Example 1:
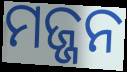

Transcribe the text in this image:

ମଜ୍ଜନ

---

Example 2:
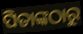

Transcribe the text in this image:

ପିତାଙ୍କଠାରୁ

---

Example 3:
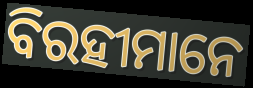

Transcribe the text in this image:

ବିରହୀମାନେ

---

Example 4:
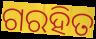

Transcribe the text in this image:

ଗରହିତ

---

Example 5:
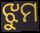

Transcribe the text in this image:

ଝୁମ